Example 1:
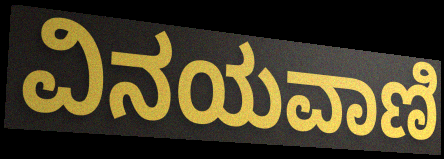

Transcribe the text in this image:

ವಿನಯವಾಣಿ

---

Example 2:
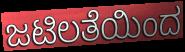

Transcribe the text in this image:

ಜಟಿಲತೆಯಿಂದ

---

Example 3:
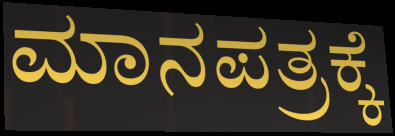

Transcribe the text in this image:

ಮಾನಪತ್ರಕ್ಕೆ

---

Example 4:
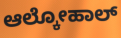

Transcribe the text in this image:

ಆಲ್ಕೋಹಾಲ್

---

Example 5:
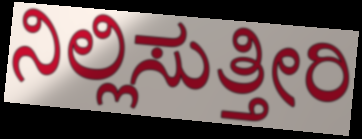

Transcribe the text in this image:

ನಿಲ್ಲಿಸುತ್ತೀರಿ